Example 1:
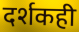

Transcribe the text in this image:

दर्शकही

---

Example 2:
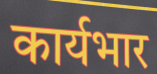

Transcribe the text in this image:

कार्यभार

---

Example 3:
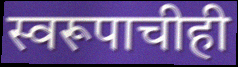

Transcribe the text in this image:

स्वरूपाचीही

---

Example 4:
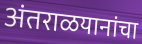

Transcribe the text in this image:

अंतराळयानांचा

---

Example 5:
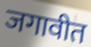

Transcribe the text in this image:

जगावीत